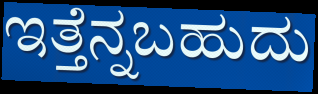
ಇತ್ತೆನ್ನಬಹುದು